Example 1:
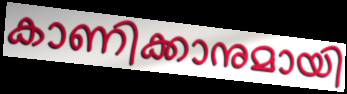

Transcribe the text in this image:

കാണിക്കാനുമായി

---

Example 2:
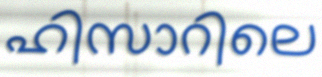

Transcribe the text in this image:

ഹിസാറിലെ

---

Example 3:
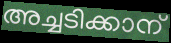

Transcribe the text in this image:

അച്ചടിക്കാന്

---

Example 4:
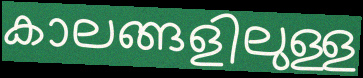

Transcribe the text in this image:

കാലങ്ങളിലുള്ള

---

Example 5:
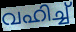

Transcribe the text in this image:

വഹിച്ച്